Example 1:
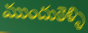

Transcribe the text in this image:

ముందుకెళ్ళి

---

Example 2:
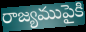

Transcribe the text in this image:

రాజ్యముపైకి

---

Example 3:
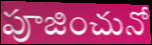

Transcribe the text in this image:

పూజించునో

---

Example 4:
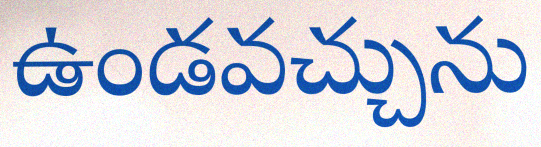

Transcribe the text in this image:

ఉండవచ్చును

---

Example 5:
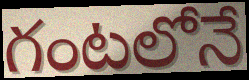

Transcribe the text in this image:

గంటలోనే